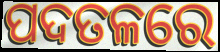
ପଦତଳରେ